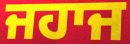
ਜਹਾਜ